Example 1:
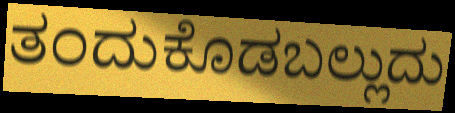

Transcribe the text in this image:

ತಂದುಕೊಡಬಲ್ಲುದು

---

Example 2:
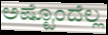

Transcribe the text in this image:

ಅಷ್ಟೊಂದೆಲ್ಲ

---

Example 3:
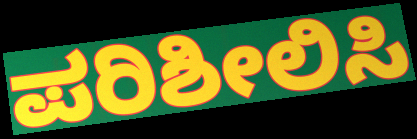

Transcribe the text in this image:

ಪರಿಶೀಲಿಸಿ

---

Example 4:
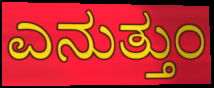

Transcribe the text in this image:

ಎನುತ್ತುಂ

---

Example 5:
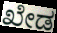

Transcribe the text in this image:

ಖೇಡ